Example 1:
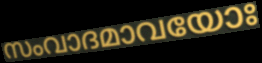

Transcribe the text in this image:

സംവാദമാവയോഃ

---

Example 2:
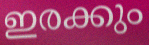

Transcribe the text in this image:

ഇരക്കും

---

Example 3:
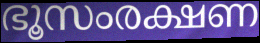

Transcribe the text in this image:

ഭൂസംരക്ഷണ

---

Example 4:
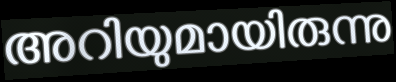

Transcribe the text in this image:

അറിയുമായിരുന്നു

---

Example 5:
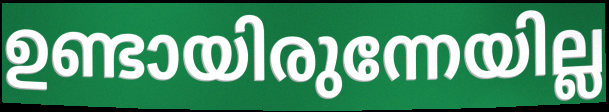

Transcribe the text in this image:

ഉണ്ടായിരുന്നേയില്ല